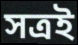
সত্ৰই